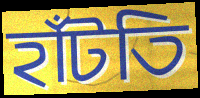
হাঁটতি